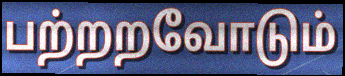
பற்றறவோடும்